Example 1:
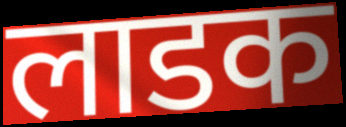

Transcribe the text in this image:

लाडक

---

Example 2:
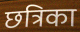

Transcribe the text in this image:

छत्रिका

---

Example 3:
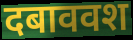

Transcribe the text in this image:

दबाववश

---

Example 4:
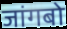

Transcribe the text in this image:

जांगबो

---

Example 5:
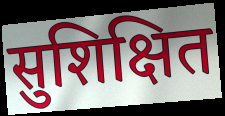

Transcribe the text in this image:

सुशिक्षित